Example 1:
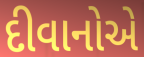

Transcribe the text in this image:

દીવાનોએ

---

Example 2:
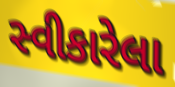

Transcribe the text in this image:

સ્વીકારેલા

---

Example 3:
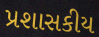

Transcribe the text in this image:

પ્રશાસકીય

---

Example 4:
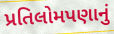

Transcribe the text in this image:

પ્રતિલોમપણાનું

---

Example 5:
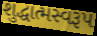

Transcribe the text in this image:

શુદ્ધાત્મસ્વરૂપ